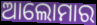
ଆଲୋମାର